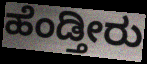
ಹೆಂಡ್ತೀರು